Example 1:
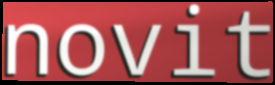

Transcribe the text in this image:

novit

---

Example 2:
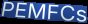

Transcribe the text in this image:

PEMFCs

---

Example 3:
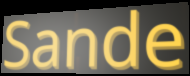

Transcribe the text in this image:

Sande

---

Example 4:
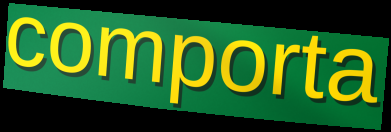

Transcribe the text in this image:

comporta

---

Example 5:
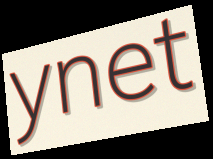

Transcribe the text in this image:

ynet